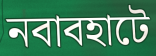
নবাবহাটে